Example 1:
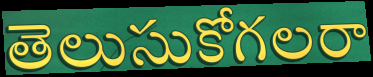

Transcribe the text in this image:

తెలుసుకోగలరా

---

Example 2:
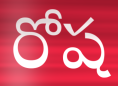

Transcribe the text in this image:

రోష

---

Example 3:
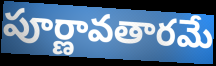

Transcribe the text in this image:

పూర్ణావతారమే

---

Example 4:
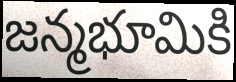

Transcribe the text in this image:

జన్మభూమికి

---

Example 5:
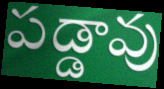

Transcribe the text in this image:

పడ్డావు